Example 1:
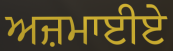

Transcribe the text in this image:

ਅਜ਼ਮਾਈਏ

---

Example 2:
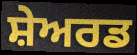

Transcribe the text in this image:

ਸ਼ੇਅਰਡ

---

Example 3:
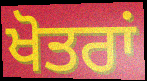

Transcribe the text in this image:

ਖੋਤਰਾਂ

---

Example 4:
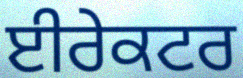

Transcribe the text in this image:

ਈਰੇਕਟਰ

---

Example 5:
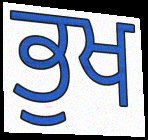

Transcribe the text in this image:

ਭੁਖ